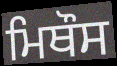
ਮਿਥੌਸ